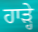
ਹਾੜ੍ਹੇ